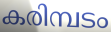
കരിമ്പടം